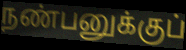
நண்பனுக்குப்